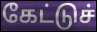
கேட்டுச்